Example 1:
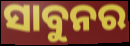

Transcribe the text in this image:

ସାବୁନର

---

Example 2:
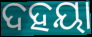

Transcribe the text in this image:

ଦହୟା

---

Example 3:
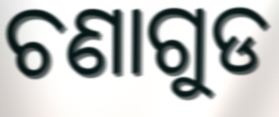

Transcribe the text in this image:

ଚଣାଗୁଡ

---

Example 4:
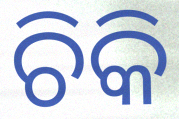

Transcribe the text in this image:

ଚିକି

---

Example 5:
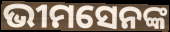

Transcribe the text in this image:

ଭୀମସେନଙ୍କ